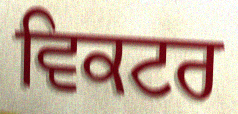
ਵਿਕਟਰ